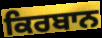
ਕਿਰਬਾਨ